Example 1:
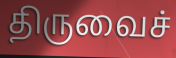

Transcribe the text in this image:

திருவைச்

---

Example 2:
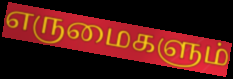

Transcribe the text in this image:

எருமைகளும்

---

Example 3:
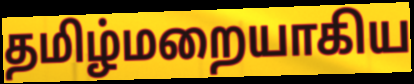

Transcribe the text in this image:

தமிழ்மறையாகிய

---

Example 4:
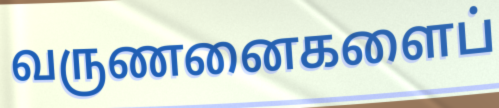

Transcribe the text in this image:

வருணனைகளைப்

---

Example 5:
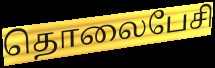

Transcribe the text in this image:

தொலைபேசி